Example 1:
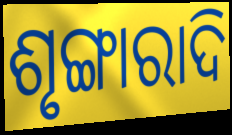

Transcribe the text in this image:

ଶୃଙ୍ଗାରାଦି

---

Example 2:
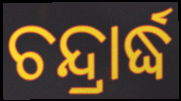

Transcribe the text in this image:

ଚନ୍ଦ୍ରାର୍ଦ୍ଧ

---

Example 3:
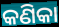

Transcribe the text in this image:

କଣିକା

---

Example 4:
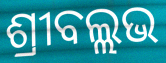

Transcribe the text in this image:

ଶ୍ରୀବଲ୍ଲଭ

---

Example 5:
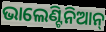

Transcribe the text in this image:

ଭାଲେଣ୍ଟିନିଆନ୍